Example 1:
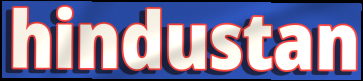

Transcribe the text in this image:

hindustan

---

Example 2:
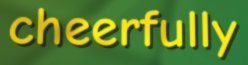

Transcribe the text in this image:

cheerfully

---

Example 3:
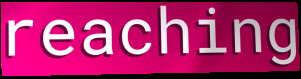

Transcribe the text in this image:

reaching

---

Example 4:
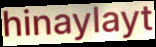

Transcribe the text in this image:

hinaylayt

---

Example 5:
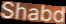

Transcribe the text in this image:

Shabd